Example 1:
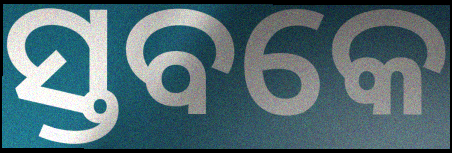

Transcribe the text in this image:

ସ୍ତବକେ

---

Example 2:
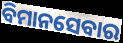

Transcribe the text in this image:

ବିମାନସେବାର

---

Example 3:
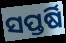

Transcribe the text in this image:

ସପ୍ତର୍ଷି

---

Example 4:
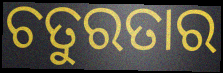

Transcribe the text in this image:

ଚତୁରତାର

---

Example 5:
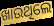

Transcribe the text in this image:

ଖାଉଥିଲେ